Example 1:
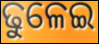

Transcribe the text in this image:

ଢୁଳେଇ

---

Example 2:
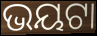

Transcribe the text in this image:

ଭୟଟା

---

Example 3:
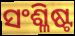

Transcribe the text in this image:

ସଂଶ୍ଳିଷ୍ଟ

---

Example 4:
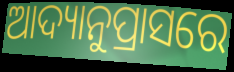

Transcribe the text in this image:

ଆଦ୍ୟାନୁପ୍ରାସରେ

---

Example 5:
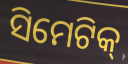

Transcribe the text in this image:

ସିମେଟିକ୍